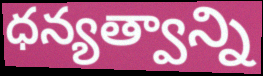
ధన్యత్వాన్ని